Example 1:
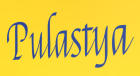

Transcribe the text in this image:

Pulastya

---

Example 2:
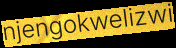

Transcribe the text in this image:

njengokwelizwi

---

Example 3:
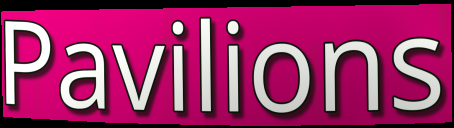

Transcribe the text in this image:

Pavilions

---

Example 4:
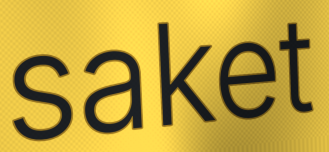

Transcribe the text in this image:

saket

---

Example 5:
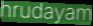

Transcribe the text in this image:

hrudayam